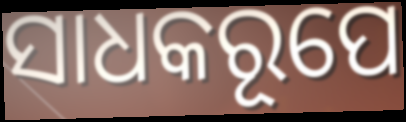
ସାଧକରୂପେ